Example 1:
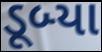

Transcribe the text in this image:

ડૂબ્યા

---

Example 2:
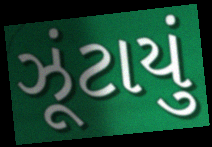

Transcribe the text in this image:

ઝૂંટાયું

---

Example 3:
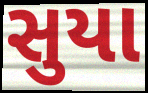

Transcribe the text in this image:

સુયા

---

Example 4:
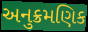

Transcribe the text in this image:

અનુક્રમણિક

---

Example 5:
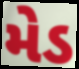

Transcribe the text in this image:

મેડ